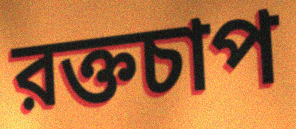
রক্তচাপ